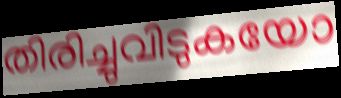
തിരിച്ചുവിടുകയോ